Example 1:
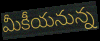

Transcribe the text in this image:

మీకీయనున్న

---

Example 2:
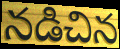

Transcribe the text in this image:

నడిచిన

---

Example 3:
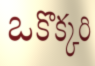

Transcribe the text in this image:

ఒకొక్కరి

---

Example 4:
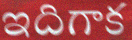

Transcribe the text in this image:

ఇదిగాక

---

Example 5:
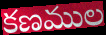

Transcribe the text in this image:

కణముల